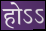
होऽऽ